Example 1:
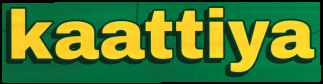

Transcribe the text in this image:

kaattiya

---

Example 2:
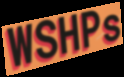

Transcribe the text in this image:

WSHPs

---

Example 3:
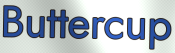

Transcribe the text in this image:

Buttercup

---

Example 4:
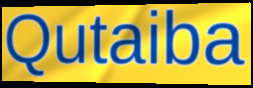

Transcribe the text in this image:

Qutaiba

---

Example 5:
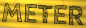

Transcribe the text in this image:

METER